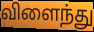
விளைந்து